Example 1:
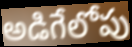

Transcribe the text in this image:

అడిగేలోపు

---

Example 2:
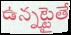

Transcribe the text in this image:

ఉన్నట్టైతే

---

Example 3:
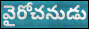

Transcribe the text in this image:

వైరోచనుడు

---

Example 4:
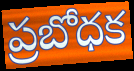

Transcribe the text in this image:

ప్రబోధక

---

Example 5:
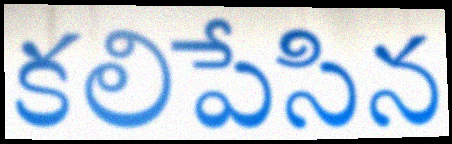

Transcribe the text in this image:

కలిపేసిన